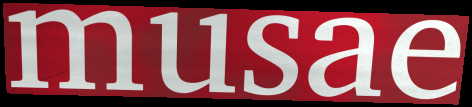
musae